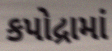
કપોદ્રામાં